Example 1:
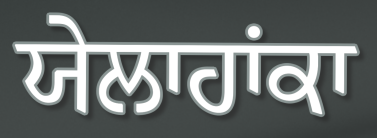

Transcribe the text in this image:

ਯੇਲਾਹਾਂਕਾ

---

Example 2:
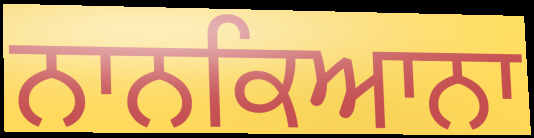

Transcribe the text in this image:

ਨਾਨਕਿਆਨਾ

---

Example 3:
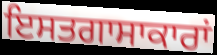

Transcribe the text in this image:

ਇਸਤਗਾਸਾਕਾਰਾਂ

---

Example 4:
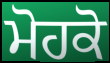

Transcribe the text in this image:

ਮੋਹਕੋ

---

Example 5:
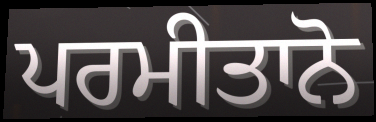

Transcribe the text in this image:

ਪਰਮੀਤਾਨੋ